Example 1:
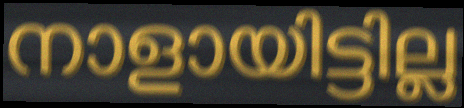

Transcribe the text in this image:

നാളായിട്ടില്ല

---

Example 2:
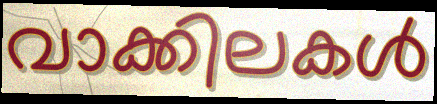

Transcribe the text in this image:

വാക്കിലകൾ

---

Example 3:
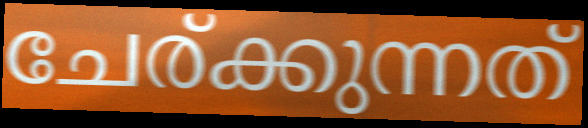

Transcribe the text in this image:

ചേര്ക്കുന്നത്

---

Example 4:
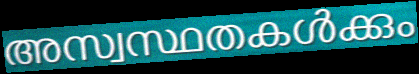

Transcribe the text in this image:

അസ്വസ്ഥതകൾക്കും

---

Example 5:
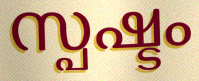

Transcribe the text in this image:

സ്പഷ്ടം